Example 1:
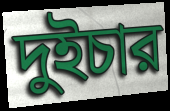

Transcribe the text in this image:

দুইচার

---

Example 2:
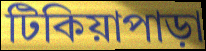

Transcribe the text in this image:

টিকিয়াপাড়া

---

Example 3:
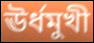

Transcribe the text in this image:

ঊর্ধমুখী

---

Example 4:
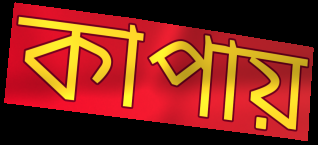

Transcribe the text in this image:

কাপায়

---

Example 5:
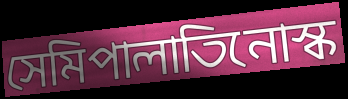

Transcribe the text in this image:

সেমিপালাতিনোস্ক